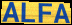
ALFA